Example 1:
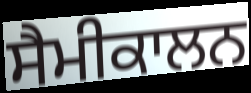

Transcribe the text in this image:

ਸੈਮੀਕਾਲਨ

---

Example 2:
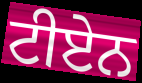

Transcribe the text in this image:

ਟੀਏਨ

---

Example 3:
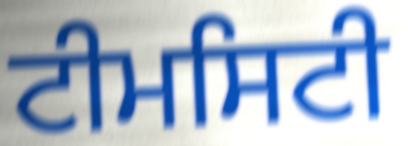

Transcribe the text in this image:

ਟੀਮਸਿਟੀ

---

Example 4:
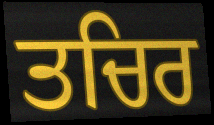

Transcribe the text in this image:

ਤਚਿਰ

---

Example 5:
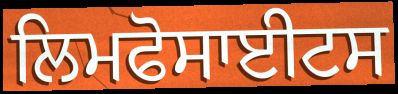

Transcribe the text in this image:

ਲਿਮਫੋਸਾਈਟਸ